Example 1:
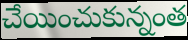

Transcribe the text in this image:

చేయించుకున్నంత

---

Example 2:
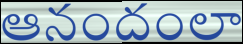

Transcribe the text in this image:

ఆనందంలా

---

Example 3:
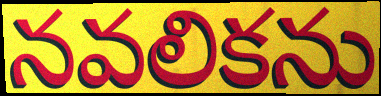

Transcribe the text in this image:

నవలికను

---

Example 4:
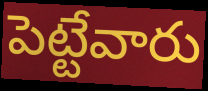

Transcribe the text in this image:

పెట్టేవారు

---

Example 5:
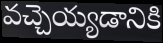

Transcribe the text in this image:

వచ్చెయ్యడానికి